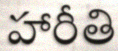
హారీతి